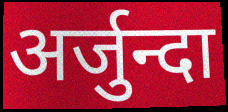
अर्जुन्दा